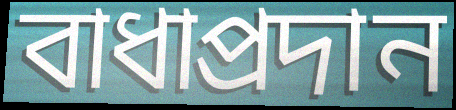
বাধাপ্রদান